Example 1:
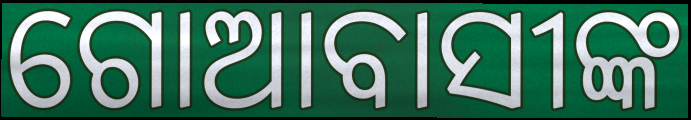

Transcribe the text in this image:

ଗୋଆବାସୀଙ୍କ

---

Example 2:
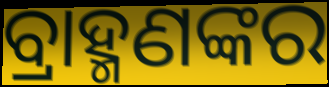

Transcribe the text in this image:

ବ୍ରାହ୍ମଣଙ୍କର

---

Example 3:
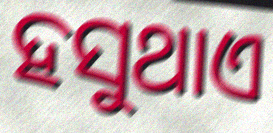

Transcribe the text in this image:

ହସୁଥାଏ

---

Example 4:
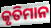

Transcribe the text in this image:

କୃତିମାନ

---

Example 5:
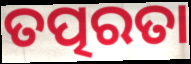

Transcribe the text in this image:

ତତ୍ପରତା